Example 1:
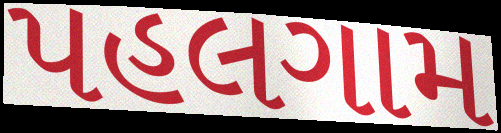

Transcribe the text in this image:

પહલગામ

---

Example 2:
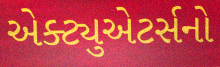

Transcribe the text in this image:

એક્ટ્યુએટર્સનો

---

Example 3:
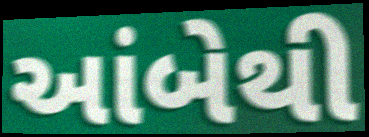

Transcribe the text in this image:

આંબેથી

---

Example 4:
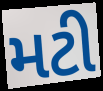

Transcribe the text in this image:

મટી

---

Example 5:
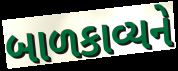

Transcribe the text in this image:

બાળકાવ્યને